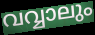
വവ്വാലും